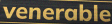
venerable